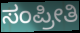
ಸಂಪ್ರೀತಿ